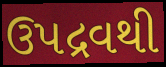
ઉપદ્રવથી